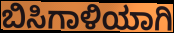
ಬಿಸಿಗಾಳಿಯಾಗಿ